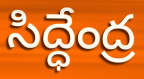
సిద్ధేంద్ర